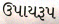
ઉપાયરૂપ